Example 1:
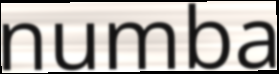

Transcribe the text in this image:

numba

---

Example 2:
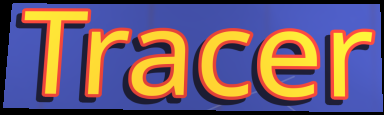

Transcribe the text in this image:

Tracer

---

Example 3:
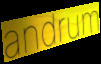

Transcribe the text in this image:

andrum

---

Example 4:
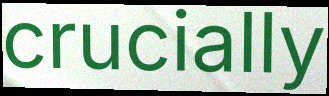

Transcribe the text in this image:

crucially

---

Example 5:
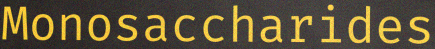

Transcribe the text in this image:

Monosaccharides